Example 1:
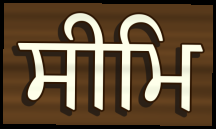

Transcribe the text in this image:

ਸੀਮਿ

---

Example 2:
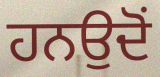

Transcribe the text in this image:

ਹਨਉਦੋਂ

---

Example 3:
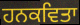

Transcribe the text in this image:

ਹਨਕਵਿਤਾ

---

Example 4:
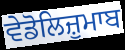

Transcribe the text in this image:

ਵੇਡੋਲਿਜ਼ੁਮਾਬ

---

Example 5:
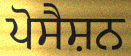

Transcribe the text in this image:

ਪੋਸੈਸ਼ਨ